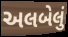
અલબેલું